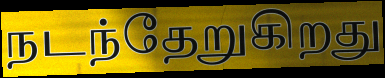
நடந்தேறுகிறது